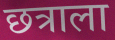
छत्राला